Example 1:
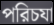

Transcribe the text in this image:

পরিচযা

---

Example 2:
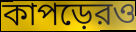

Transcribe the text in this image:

কাপড়েরও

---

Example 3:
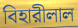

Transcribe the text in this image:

বিহারীলাল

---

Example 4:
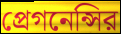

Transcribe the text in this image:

প্রেগনেন্সির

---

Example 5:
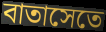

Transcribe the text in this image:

বাতাসেতে